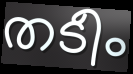
തടീം